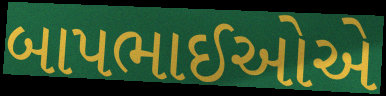
બાપભાઈઓએ